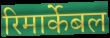
रिमार्केबल